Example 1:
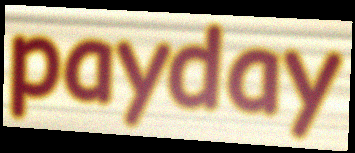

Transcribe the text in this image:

payday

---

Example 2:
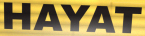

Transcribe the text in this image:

HAYAT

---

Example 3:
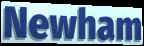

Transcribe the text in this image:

Newham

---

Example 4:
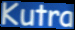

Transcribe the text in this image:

Kutra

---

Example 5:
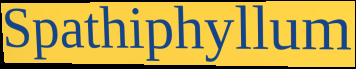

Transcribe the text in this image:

Spathiphyllum